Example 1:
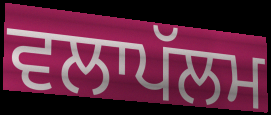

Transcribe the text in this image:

ਵਲਾਪੱਲਮ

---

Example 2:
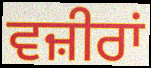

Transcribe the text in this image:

ਵਜ਼ੀਰਾਂ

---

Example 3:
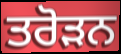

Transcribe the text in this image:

ਤਰੋੜਨ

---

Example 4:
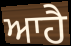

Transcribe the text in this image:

ਆਹੈ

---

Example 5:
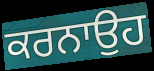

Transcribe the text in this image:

ਕਰਨਾਉਹ